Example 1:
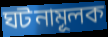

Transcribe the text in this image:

ঘটনামূলক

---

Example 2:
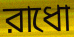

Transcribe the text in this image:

রাধো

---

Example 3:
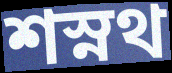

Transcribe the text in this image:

শস্নথ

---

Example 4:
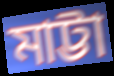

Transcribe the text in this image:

মাট্টা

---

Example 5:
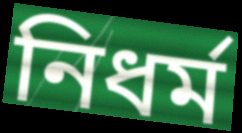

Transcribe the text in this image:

নিধর্ম